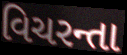
વિચરન્તા